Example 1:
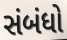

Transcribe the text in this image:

સંબંધો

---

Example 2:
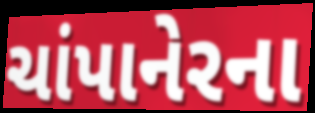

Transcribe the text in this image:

ચાંપાનેરના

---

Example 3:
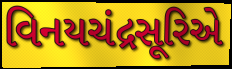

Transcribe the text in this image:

વિનયચંદ્રસૂરિએ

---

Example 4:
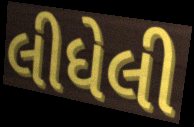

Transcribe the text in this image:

લીધેલી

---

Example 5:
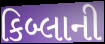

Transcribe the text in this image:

કિબ્લાની